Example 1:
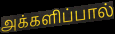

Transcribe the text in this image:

அக்களிப்பால்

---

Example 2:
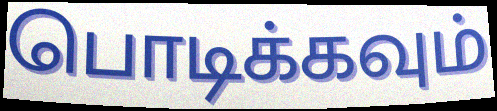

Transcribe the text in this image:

பொடிக்கவும்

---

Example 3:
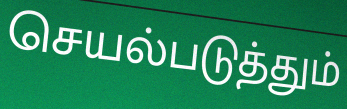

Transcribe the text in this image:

செயல்படுத்தும்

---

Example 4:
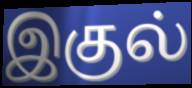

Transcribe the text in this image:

இகுல்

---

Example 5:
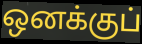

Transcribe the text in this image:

ஒனக்குப்